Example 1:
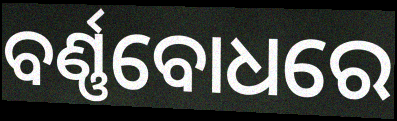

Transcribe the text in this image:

ବର୍ଣ୍ଣବୋଧରେ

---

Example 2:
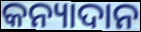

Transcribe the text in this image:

କନ୍ୟାଦାନ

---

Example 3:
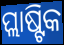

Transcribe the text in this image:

ପ୍ଲାଷ୍ଟିକ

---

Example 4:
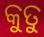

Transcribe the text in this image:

କୁତୁ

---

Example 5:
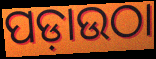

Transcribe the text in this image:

ପଡ଼ାଉଠା